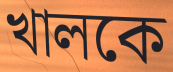
খালকে